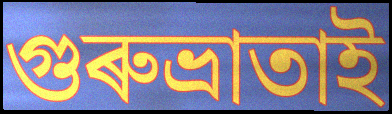
গুৰুভ্ৰাতাই